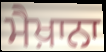
ਮੈਖ਼ਾਨਾ